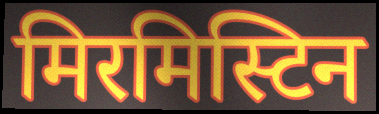
मिरमिस्टिन